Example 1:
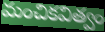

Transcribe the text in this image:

మంచికవిత్వం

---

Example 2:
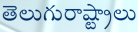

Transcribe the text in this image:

తెలుగురాష్ట్రాలు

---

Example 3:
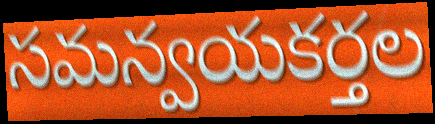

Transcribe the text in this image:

సమన్వయకర్తల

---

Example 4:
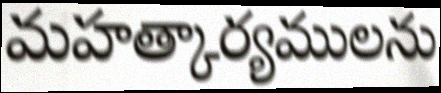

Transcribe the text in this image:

మహత్కార్యములను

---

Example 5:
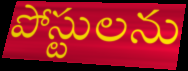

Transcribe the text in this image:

పోస్టులను